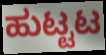
ಹುಟ್ಟಟ